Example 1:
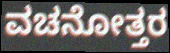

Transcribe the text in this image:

ವಚನೋತ್ತರ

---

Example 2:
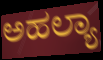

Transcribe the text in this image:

ಅಹಲ್ಯಾ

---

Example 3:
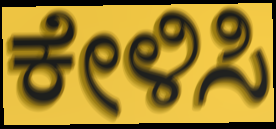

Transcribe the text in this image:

ಕೇಳಿಸಿ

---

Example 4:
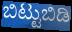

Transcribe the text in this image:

ಬಿಟ್ಟುಬಿಡಿ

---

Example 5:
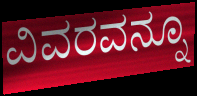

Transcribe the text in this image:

ವಿವರವನ್ನೂ